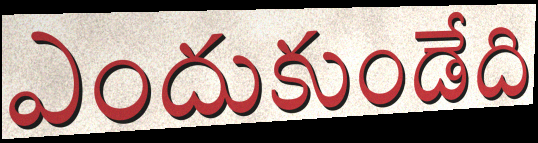
ఎందుకుండేది